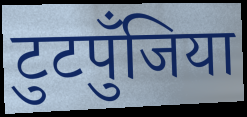
टुटपुँजिया